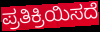
ಪ್ರತಿಕ್ರಿಯಿಸದೆ